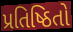
પ્રતિષ્ઠિતો